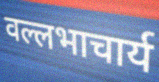
वल्लभाचार्य